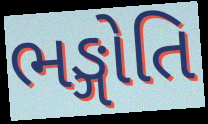
ભઙ્ગોતિ